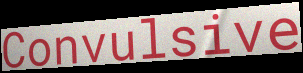
Convulsive